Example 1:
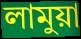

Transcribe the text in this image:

লামুয়া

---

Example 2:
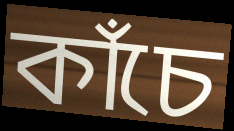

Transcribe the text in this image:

কাঁচে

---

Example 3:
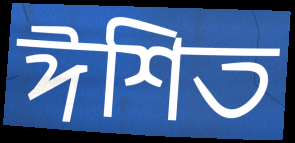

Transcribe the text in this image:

ঈশিত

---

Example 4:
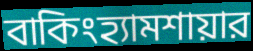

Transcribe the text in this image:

বাকিংহ্যামশায়ার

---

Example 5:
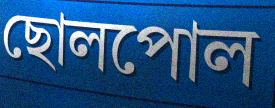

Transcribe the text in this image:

ছোলপোল